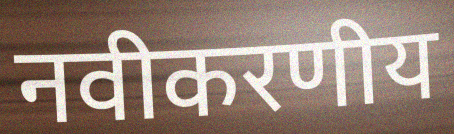
नवीकरणीय